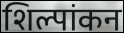
शिल्पांकन